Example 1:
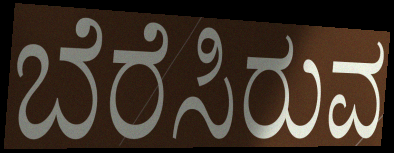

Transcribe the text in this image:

ಬೆರೆಸಿರುವ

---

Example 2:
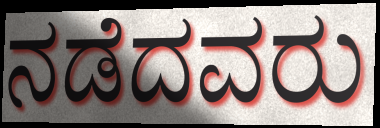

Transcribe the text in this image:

ನಡೆದವರು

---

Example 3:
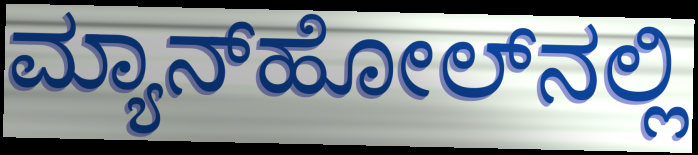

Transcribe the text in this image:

ಮ್ಯಾನ್‌ಹೋಲ್‌ನಲ್ಲಿ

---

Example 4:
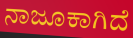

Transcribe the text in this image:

ನಾಜೂಕಾಗಿದೆ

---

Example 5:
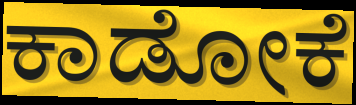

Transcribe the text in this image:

ಕಾಡೋಕೆ